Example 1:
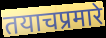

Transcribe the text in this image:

तयाचप्रमारे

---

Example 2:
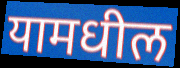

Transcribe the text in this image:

यामधील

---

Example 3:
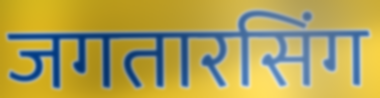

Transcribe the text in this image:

जगतारसिंग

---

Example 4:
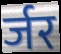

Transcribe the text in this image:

र्जर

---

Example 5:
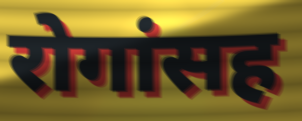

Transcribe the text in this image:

रोगांसह